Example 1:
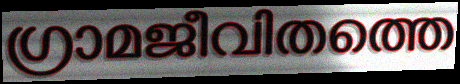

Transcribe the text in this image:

ഗ്രാമജീവിതത്തെ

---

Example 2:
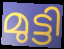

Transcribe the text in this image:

മുട്ടി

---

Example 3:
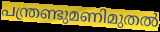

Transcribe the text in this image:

പന്ത്രണ്ടുമണിമുതൽ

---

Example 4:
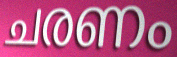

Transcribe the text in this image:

ചരണം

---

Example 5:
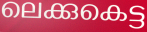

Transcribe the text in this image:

ലെക്കുകെട്ട